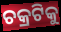
ଚକ୍ରଟିକୁ